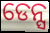
ଡେନ୍ସ